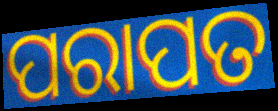
ପରାପତ